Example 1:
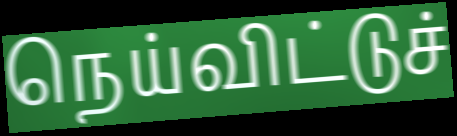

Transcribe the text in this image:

நெய்விட்டுச்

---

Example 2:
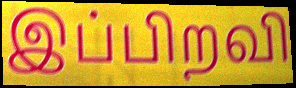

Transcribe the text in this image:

இப்பிறவி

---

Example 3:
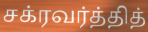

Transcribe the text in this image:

சக்ரவர்த்தித்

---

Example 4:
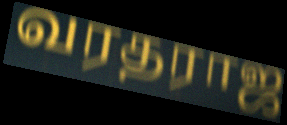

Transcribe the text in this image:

வரதராஜ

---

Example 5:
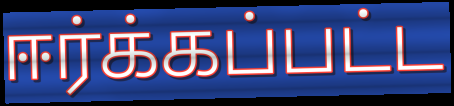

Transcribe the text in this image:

ஈர்க்கப்பட்ட